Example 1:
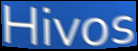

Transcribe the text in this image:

Hivos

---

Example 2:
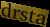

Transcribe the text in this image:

drsta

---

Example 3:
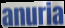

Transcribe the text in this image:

anuria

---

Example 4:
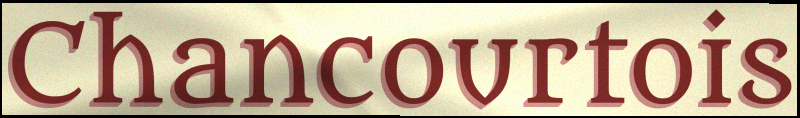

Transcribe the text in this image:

Chancourtois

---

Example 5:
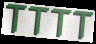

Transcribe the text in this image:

TTTT